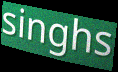
singhs